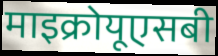
माइक्रोयूएसबी